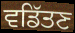
ਵਡਿੱਤਣ